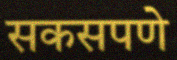
सकसपणे